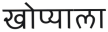
खोप्याला